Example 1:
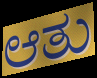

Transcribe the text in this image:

ಆತು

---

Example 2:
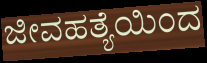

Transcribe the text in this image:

ಜೀವಹತ್ಯೆಯಿಂದ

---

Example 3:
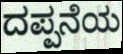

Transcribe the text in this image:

ದಪ್ಪನೆಯ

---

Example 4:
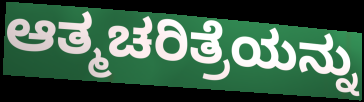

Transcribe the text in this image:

ಆತ್ಮಚರಿತ್ರೆಯನ್ನು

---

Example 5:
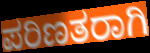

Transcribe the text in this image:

ಪರಿಣತರಾಗಿ